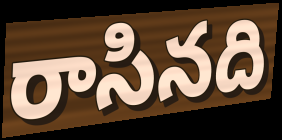
రాసినది